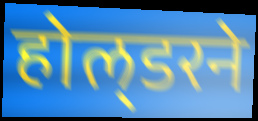
होल्डरने